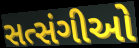
સત્સંગીઓ